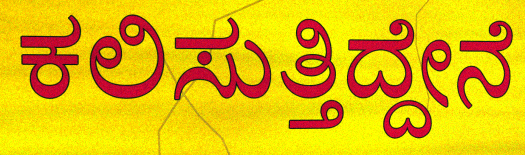
ಕಲಿಸುತ್ತಿದ್ದೇನೆ